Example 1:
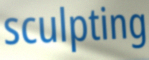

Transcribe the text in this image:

sculpting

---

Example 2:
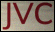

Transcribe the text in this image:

JVC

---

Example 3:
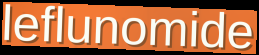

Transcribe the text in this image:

leflunomide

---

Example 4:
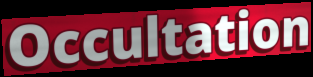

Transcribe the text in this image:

Occultation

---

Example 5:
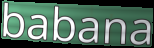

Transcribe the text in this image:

babana